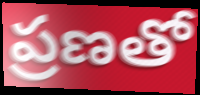
ప్రణతో